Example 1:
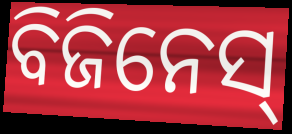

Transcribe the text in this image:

ବିଜିନେସ୍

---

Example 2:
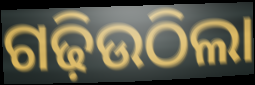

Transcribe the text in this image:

ଗଢ଼ିଉଠିଲା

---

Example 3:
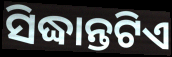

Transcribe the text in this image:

ସିଦ୍ଧାନ୍ତଟିଏ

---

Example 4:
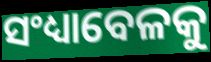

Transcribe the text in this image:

ସଂଧ୍ୟାବେଳକୁ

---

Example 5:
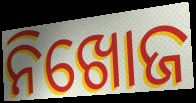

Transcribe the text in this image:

ନିଖୋଜ